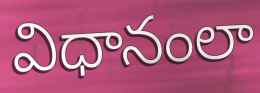
విధానంలా